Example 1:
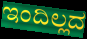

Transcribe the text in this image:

ಇಂದಿಲ್ಲದ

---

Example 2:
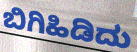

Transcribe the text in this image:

ಬಿಗಿಹಿಡಿದು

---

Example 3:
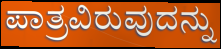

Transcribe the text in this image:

ಪಾತ್ರವಿರುವುದನ್ನು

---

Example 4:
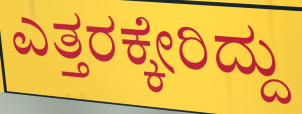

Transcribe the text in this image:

ಎತ್ತರಕ್ಕೇರಿದ್ದು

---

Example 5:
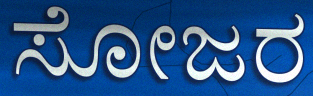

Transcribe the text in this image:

ಸೋಜರ